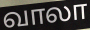
வாலா